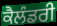
ਕੈਲੰਡਰੀ